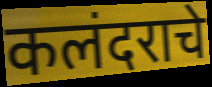
कलंदराचे